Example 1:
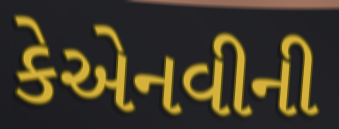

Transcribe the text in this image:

કેએનવીની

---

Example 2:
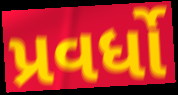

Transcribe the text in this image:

પ્રવર્ધો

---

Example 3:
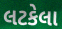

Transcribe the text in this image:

લટકેલા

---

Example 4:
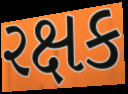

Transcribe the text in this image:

રક્ષક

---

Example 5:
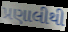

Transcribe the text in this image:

પ્રણાલીથી